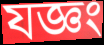
যজ্ঞং